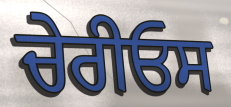
ਚੇਰੀਓਸ